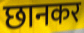
छानकर